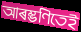
আৰম্ভণিতেই